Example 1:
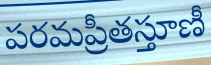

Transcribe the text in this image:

పరమప్రీతస్తూణీ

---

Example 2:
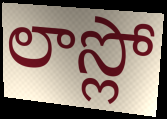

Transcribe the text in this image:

లాస్లో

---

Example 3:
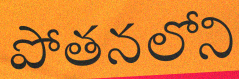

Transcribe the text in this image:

పోతనలోని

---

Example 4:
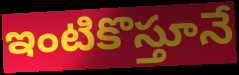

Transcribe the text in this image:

ఇంటికొస్తూనే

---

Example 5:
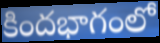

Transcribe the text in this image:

కిందభాగంలో